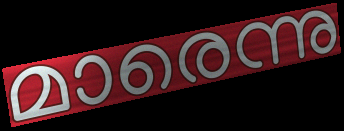
മാരെന്നു